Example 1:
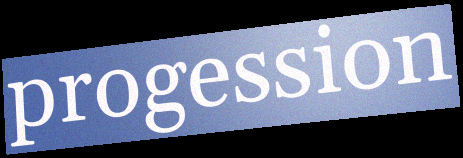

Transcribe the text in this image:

progession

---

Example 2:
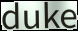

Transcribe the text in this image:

duke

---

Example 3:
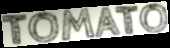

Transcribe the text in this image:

TOMATO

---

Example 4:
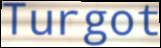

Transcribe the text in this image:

Turgot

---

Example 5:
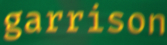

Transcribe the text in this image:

garrison